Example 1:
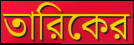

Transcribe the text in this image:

তারিকের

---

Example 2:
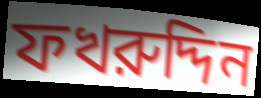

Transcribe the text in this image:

ফখরুদ্দিন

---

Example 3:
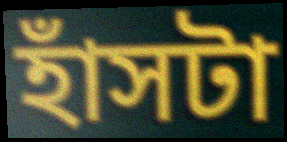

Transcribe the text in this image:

হাঁসটা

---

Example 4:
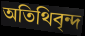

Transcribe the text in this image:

অতিথিবৃন্দ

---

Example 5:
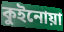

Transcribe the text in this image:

কুইনোয়া